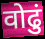
वोढुं